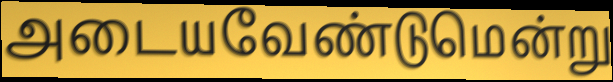
அடையவேண்டுமென்று